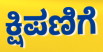
ಕ್ಷಿಪಣಿಗೆ